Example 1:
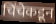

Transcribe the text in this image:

चिंचेकडून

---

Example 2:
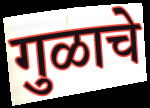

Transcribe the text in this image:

गुळाचे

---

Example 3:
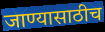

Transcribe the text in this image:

जाण्यासाठीच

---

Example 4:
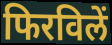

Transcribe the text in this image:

फिरविलें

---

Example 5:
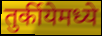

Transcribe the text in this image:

तुर्कीयेमध्ये